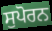
ਸੁਪੋਰਨ